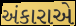
અંકારાએ